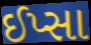
ઈપ્સા